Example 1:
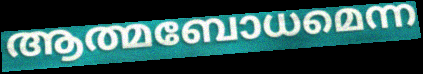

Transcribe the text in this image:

ആത്മബോധമെന്ന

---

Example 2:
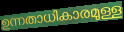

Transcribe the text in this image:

ഉന്നതാധികാരമുള്ള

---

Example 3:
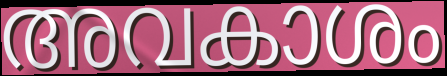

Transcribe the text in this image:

അവകാശം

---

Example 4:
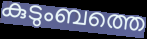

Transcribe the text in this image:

കുടുംബത്തെ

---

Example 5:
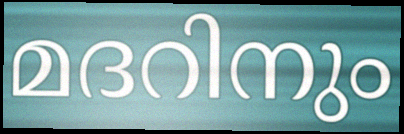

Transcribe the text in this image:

മദറിനും